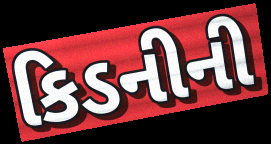
કિડનીની